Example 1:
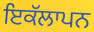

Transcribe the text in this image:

ਇਕੱਲਾਪਨ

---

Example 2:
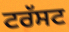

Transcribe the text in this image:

ਟਰੱਸਟ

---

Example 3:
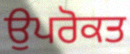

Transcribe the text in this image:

ਉਪਰੋਕਤ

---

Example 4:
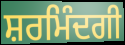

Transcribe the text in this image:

ਸ਼ਰਮਿੰਦਗੀ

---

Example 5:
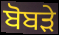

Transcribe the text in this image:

ਬੋਬੜੇ